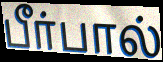
பீர்பால்